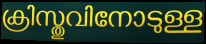
ക്രിസ്തുവിനോടുള്ള